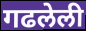
गढलेली